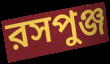
রসপুঞ্জ